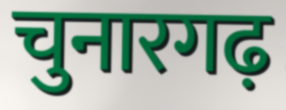
चुनारगढ़